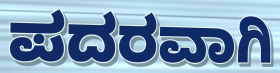
ಪದರವಾಗಿ